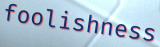
foolishness